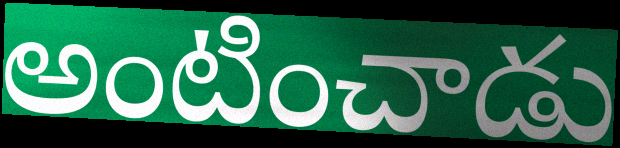
అంటించాడు